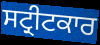
ਸਟ੍ਰੀਟਕਾਰ